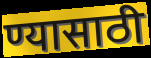
ण्यासाठी